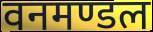
वनमण्डल